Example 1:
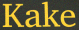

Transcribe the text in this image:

Kake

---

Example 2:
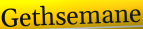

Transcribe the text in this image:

Gethsemane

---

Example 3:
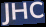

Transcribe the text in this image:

JHC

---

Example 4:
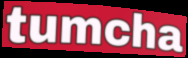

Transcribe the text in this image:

tumcha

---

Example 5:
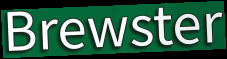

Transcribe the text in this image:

Brewster